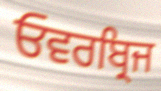
ਓਵਰਬ੍ਰਿਜ